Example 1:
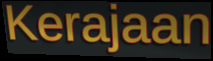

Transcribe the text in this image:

Kerajaan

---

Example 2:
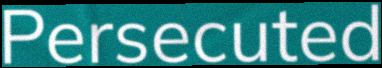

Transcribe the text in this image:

Persecuted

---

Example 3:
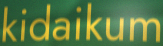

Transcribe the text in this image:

kidaikum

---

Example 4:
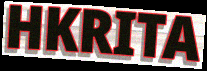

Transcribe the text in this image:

HKRITA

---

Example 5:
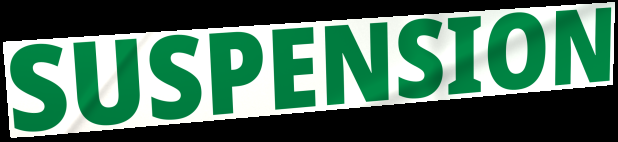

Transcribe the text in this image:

SUSPENSION